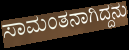
ಸಾಮಂತನಾಗಿದ್ದನು